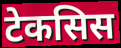
टेकसिस